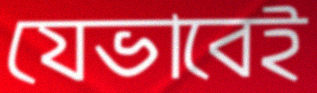
যেভাবেই